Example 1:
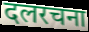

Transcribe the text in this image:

दलरचना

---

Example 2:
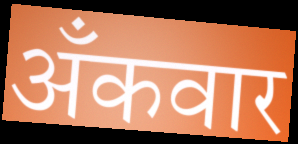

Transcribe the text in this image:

अँकवार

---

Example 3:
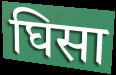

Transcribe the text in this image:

घिसा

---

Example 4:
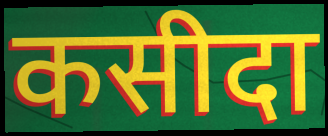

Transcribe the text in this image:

कसीदा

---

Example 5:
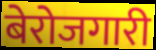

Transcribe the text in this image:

बेरोजगारी